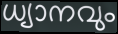
ധ്യാനവും